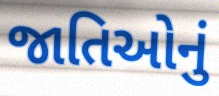
જાતિઓનું